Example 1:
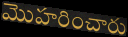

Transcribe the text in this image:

మొహరించారు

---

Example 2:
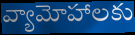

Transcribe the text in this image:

వ్యామోహాలకు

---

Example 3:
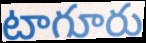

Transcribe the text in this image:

టాగూరు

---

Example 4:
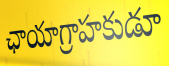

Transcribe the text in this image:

ఛాయాగ్రాహకుడూ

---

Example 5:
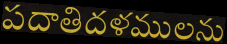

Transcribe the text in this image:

పదాతిదళములను